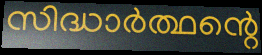
സിദ്ധാർത്ഥന്റെ